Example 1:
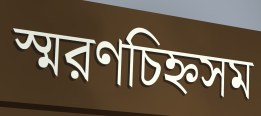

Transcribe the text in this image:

স্মরণচিহ্নসম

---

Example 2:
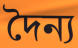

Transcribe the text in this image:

দৈন্য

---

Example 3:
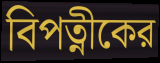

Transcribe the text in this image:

বিপত্নীকের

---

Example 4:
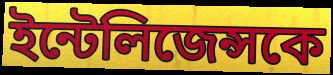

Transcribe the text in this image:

ইন্টেলিজেন্সকে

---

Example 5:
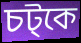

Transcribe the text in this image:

চট্‌কে